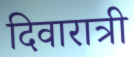
दिवारात्री